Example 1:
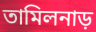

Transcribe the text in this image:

তামিলনাড়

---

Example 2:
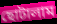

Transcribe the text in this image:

ছোটালাম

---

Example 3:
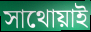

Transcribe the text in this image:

সাথোয়াই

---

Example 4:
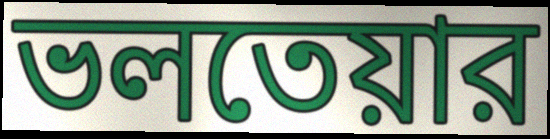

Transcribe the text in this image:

ভলতেয়ার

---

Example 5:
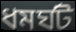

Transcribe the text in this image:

ধমর্ঘট